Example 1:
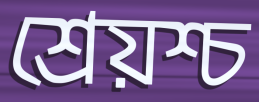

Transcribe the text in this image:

শ্রেয়শ্চ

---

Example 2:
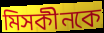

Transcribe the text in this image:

মিসকীনকে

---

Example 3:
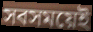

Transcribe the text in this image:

সবসময়েই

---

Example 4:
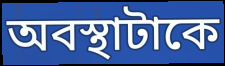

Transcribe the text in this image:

অবস্থাটাকে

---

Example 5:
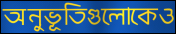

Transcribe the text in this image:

অনুভূতিগুলোকেও